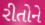
રીતોને